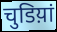
चुडिय़ां